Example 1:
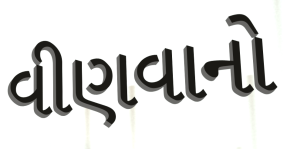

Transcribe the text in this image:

વીણવાનો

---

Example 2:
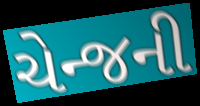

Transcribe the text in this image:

ચેન્જની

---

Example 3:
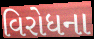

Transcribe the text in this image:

વિરોધના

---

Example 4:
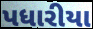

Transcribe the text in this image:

પધારીયા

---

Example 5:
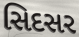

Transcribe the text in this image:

સિદસર